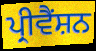
ਪ੍ਰੀਵੈਂਸ਼ਨ